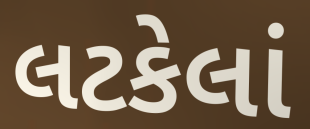
લટકેલાં